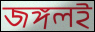
জঙ্গলই